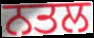
ਨਤਲ